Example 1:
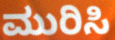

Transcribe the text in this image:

ಮುರಿಸಿ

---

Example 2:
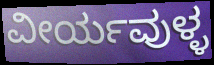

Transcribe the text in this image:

ವೀರ್ಯವುಳ್ಳ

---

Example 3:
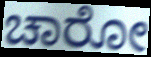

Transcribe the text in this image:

ಚಾರೋ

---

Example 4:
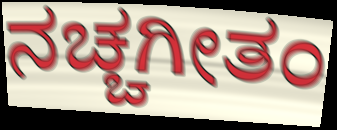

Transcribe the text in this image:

ನಚ್ಚಗೀತಂ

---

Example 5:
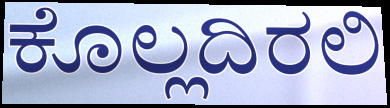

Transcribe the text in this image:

ಕೊಲ್ಲದಿರಲಿ